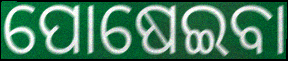
ପୋଷେଇବା